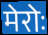
मेरोः